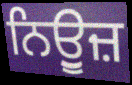
ਨਿਉੂਜ਼